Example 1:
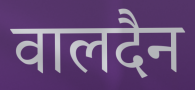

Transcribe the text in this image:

वालदैन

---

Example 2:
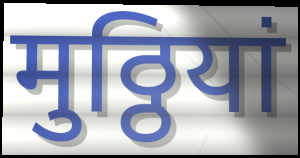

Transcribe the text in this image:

मुठ्ठियां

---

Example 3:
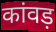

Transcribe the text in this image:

कांवड़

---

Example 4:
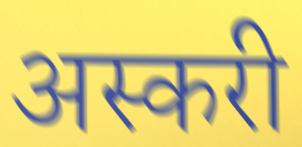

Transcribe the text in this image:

अस्करी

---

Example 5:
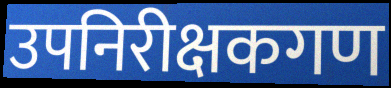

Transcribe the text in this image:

उपनिरीक्षकगण